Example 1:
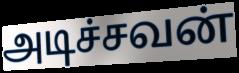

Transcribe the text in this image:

அடிச்சவன்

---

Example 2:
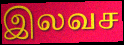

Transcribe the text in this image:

இலவச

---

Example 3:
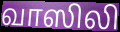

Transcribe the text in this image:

வாஸிலி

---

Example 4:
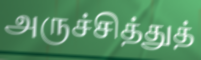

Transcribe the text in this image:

அருச்சித்துத்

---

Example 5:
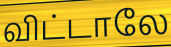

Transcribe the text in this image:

விட்டாலே